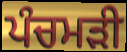
ਪੰਚਮੜੀ